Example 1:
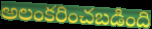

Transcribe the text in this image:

అలంకరించబడింది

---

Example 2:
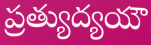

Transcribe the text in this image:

ప్రత్యుద్యయౌ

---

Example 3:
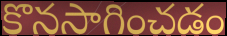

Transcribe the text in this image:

కొనసాగించడం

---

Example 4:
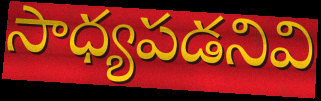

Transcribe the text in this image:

సాధ్యపడనివి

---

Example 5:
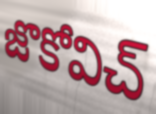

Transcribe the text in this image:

జొకోవిచ్